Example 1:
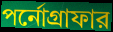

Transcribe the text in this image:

পর্নোগ্রাফার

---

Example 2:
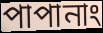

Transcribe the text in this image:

পাপানাং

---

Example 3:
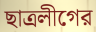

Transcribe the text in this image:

ছাত্রলীগের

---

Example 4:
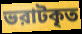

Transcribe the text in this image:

ভরাটকৃত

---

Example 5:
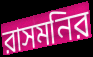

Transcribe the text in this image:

রাসমনির